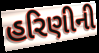
હરિણીની